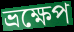
ভ্রক্ষেপ